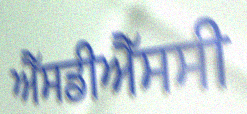
ਐੱਸਡੀਐੱਸਸੀ